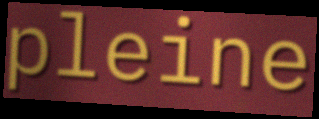
pleine